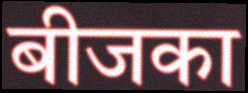
बीजका